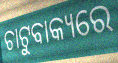
ଚାଟୁବାକ୍ୟରେ